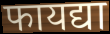
फायद्या